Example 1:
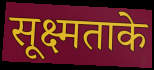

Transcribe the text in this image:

सूक्ष्मताके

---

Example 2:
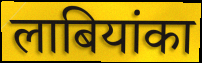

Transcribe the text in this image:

लाबियांका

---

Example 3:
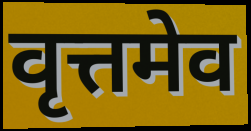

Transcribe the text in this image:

वृत्तमेव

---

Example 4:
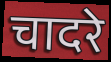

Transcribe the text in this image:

चादरे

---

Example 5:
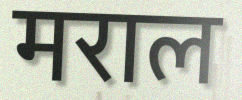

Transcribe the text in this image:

मराल